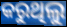
କରୁଥିଲୁ